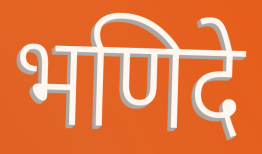
भणिदे